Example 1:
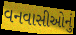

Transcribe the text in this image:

વનવાસીઓનું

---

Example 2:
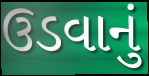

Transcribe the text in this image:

ઉડવાનું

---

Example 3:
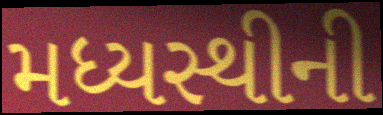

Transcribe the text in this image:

મધ્યસ્થીની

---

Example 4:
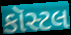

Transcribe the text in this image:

કૉસ્ટલ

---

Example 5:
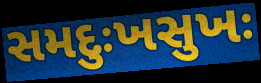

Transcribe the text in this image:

સમદુઃખસુખઃ